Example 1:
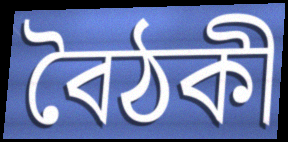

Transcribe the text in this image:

বৈঠকী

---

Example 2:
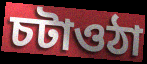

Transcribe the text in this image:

চটাওঠা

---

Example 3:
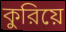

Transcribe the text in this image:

কুরিয়ে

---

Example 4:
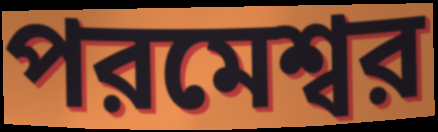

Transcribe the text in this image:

পরমেশ্বর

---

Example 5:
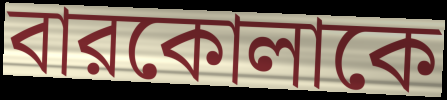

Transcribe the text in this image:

বারকোলাকে